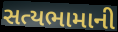
સત્યભામાની